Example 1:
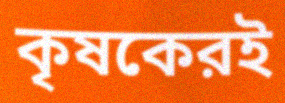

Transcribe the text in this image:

কৃষকেরই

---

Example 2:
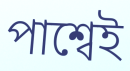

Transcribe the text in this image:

পাশ্বেই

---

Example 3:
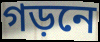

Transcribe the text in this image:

গড়নে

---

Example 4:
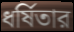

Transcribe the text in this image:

ধর্ষিতার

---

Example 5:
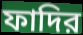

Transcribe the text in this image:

ফাদির